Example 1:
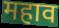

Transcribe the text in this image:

महाव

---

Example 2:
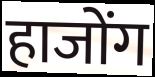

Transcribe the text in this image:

हाजोंग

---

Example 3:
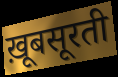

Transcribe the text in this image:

ख़ूबसूरती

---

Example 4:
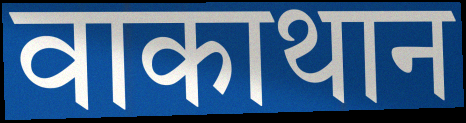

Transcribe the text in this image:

वाकाथान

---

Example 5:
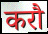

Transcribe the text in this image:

करौ